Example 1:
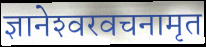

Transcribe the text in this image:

ज्ञानेश्वरवचनामृत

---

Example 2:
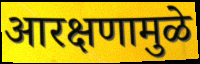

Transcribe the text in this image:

आरक्षणामुळे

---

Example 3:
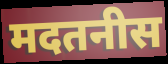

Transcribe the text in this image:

मदतनीस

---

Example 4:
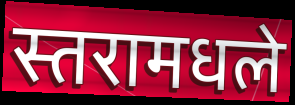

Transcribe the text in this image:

स्तरामधले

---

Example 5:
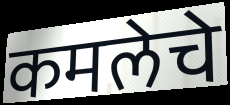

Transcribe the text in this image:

कमलेचे